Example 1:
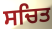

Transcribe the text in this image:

ਸਚਿਤ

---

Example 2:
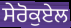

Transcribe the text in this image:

ਸੇਰੋਕੁਏਲ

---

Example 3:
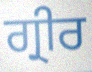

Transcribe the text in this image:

ਗ੍ਰੀਰ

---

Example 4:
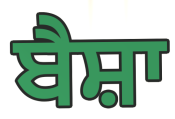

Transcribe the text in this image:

ਬੈਸ਼ਾ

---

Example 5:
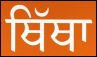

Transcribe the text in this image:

ਥਿੱਥਾ